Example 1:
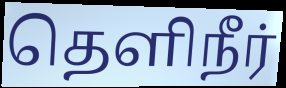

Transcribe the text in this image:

தெளிநீர்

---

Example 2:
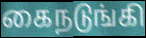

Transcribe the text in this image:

கைநடுங்கி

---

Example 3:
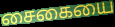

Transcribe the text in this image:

சைகையை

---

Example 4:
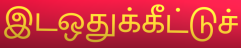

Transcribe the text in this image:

இடஒதுக்கீட்டுச்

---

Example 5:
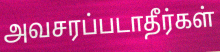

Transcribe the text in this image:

அவசரப்படாதீர்கள்